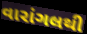
વારાંગલથી